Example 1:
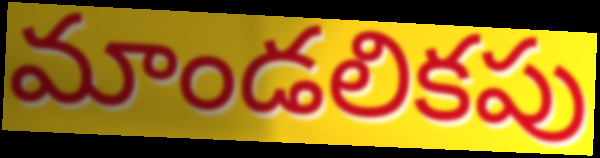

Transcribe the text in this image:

మాండలికపు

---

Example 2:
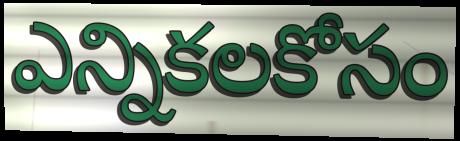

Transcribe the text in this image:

ఎన్నికలకోసం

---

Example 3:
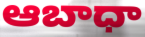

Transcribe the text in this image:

ఆబాధా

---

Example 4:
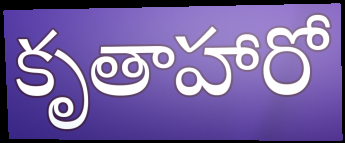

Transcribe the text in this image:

కృతాహారో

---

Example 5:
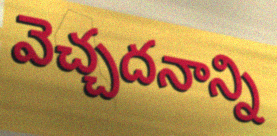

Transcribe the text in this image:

వెచ్చదనాన్ని